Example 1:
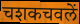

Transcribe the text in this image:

चशकचवलें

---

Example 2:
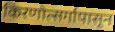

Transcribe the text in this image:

किरणोत्सर्गापासून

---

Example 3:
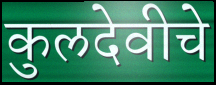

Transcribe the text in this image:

कुलदेवीचे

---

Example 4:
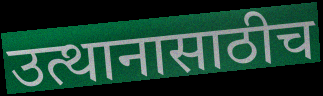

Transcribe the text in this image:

उत्थानासाठीच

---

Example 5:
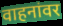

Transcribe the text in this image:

वाहनांवर